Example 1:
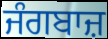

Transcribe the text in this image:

ਜੰਗਬਾਜ਼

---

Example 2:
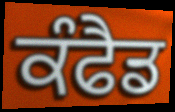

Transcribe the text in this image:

ਕੰਫੈਡ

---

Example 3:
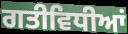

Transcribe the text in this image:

ਗਤੀਵਿਧੀਆਂ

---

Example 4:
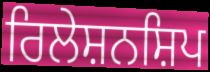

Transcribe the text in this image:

ਰਿਲੇਸ਼ਨਸ਼ਿਪ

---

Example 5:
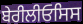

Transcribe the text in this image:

ਬੇਰੀਲੀਓਸਿਸ